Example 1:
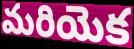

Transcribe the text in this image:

మరియెక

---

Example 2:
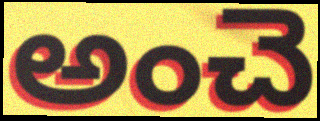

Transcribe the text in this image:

అంచె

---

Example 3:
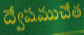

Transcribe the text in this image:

ద్వేషముచేత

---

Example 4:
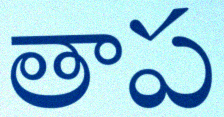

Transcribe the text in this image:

తాప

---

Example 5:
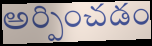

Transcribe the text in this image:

అర్పించడం